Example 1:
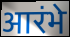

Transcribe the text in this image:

आरंभे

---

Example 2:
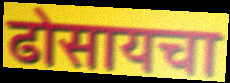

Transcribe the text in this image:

ढोसायचा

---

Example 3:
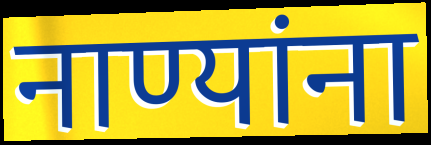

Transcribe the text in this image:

नाण्यांना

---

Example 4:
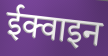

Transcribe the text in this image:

ईक्वाइन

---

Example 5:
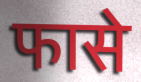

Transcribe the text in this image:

फासे